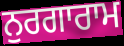
ਨੁਰਗਾਰਾਮ